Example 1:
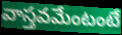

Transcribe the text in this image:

వాస్తవమేంటంటే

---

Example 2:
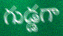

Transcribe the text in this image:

గుడ్డగా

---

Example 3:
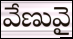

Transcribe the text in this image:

వేణువై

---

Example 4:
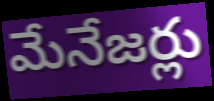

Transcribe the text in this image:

మేనేజర్లు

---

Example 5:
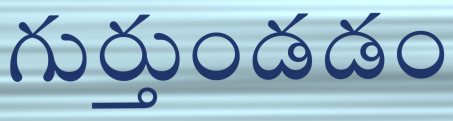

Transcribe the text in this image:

గుర్తుండడం